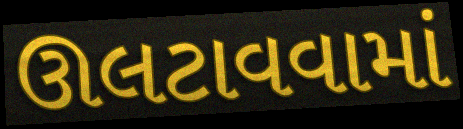
ઊલટાવવામાં